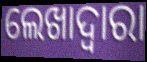
ଲେଖାଦ୍ୱାରା